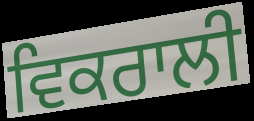
ਵਿਕਰਾਲੀ